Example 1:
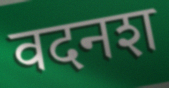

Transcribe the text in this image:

वदनश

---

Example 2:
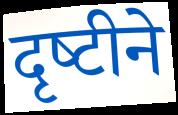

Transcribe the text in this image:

दृष्‍टीने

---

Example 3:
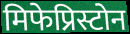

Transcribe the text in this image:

मिफेप्रिस्टोन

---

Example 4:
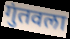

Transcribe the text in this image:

गुंतवला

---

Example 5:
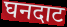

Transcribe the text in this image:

घनदाट